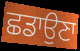
ਛਡਾਉਣਾ